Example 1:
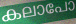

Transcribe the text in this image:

കലാപോ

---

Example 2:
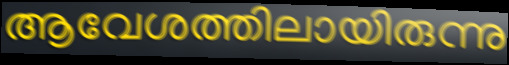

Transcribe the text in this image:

ആവേശത്തിലായിരുന്നു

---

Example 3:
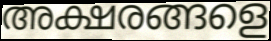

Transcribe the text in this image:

അക്ഷരങ്ങളെ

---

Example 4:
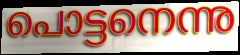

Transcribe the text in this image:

പൊട്ടനെന്നു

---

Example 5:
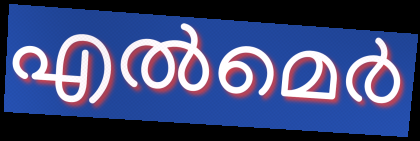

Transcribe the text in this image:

എൽമെർ